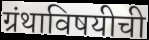
ग्रंथाविषयीची